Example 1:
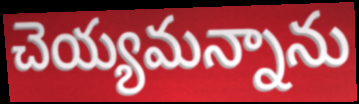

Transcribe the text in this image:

చెయ్యమన్నాను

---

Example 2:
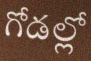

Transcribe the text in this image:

గోడల్లో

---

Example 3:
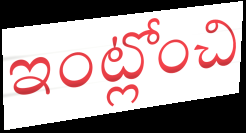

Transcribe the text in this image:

ఇంట్లోంచి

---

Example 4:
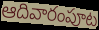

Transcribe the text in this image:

ఆదివారంపూట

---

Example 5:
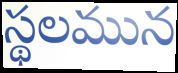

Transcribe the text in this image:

స్థలమున